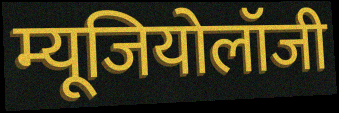
म्यूजियोलॉजी